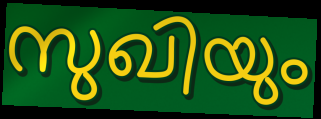
സുഖിയും